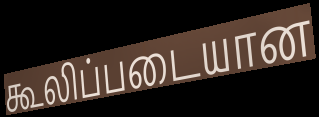
கூலிப்படையான